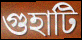
গুহাটি